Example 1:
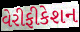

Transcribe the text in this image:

વેરીફીકેશન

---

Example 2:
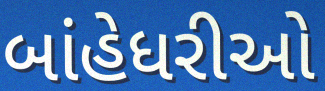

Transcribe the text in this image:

બાંહેધરીઓ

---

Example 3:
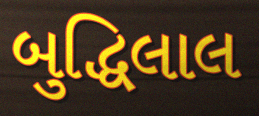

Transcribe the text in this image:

બુદ્ધિલાલ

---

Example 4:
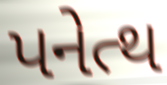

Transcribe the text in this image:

પનેત્થ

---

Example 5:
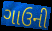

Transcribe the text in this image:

ગાઉની